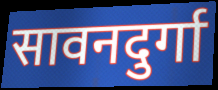
सावनदुर्गा